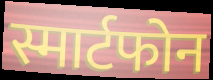
स्मार्टफोन